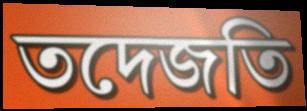
তদেজতি